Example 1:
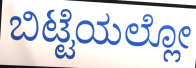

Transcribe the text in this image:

ಬಿಟ್ಟೆಯಲ್ಲೋ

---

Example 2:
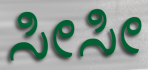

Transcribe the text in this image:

ಸೀಸೀ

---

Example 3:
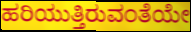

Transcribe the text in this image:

ಹರಿಯುತ್ತಿರುವಂತೆಯೇ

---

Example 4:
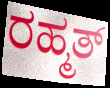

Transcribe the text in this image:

ರಹ್ಮತ್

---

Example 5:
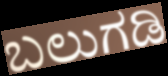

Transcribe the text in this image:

ಬಲುಗಡಿ